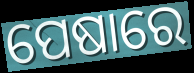
ପେଷାରେ